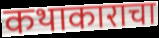
कथाकाराचा